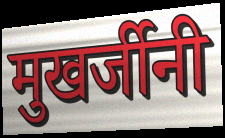
मुखर्जीनी